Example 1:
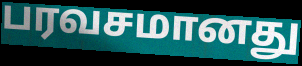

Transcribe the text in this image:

பரவசமானது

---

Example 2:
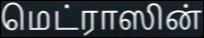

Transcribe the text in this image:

மெட்ராஸின்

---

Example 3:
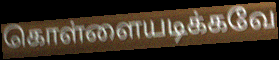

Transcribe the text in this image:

கொள்ளையடிக்கவே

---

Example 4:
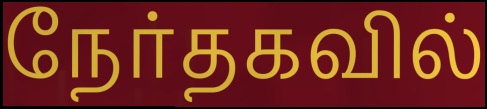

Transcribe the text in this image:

நேர்தகவில்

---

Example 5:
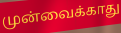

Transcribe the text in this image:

முன்வைக்காது